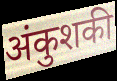
अंकुशकी